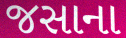
જસાના